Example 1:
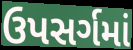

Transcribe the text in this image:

ઉપસર્ગમાં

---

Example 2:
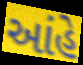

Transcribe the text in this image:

આંહે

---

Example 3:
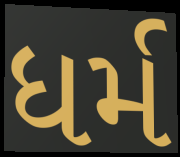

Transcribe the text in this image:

ધર્મ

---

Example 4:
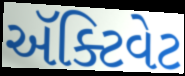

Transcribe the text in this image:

ઍક્ટિવેટ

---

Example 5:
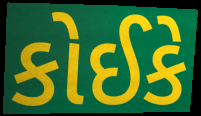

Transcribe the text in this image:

કોઈકે